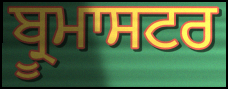
ਬ੍ਰੂਮਾਸਟਰ